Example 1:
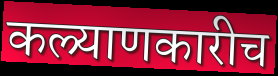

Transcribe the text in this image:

कल्याणकारीच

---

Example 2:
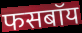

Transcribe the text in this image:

फसबॉय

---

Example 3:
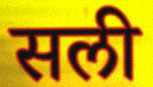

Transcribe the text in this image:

सली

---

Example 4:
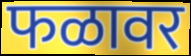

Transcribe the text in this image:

फळावर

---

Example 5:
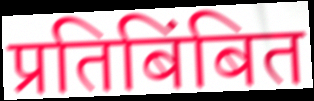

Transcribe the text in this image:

प्रतिबिंबित